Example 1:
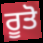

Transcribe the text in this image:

ਰੂਤੋ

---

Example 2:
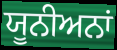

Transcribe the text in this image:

ਯੂਨੀਅਨਾਂ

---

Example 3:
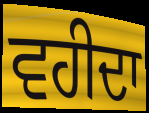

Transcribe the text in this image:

ਵਹੀਦਾ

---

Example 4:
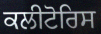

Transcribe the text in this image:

ਕਲੀਟੋਰਿਸ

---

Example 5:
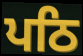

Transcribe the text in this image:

ਪਠਿ